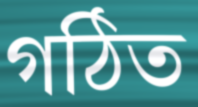
গঠিত